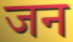
जन